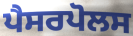
ਪੈਸਰਪੋਲਸ